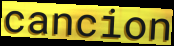
cancion